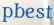
pbest